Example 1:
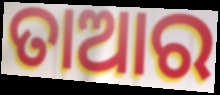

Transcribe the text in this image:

ତାଆର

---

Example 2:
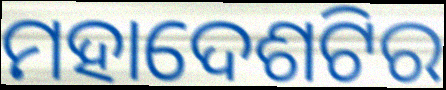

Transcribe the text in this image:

ମହାଦେଶଟିର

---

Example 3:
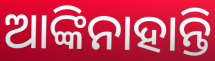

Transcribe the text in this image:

ଆଙ୍କିନାହାନ୍ତି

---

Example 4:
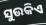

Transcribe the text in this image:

ସୁଉକିଏ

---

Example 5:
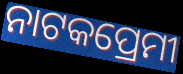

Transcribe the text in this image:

ନାଟକପ୍ରେମୀ